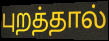
புறத்தால்